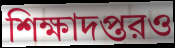
শিক্ষাদপ্তরও